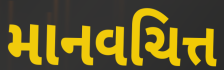
માનવચિત્ત